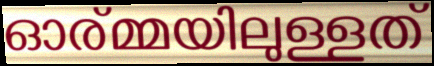
ഓര്മ്മയിലുള്ളത്